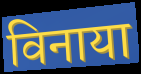
विनाया